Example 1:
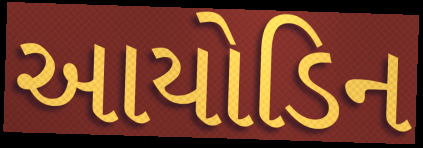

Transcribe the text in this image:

આયોડિન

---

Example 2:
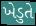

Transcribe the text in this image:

ખેડુતે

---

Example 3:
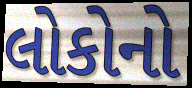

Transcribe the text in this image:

લોકોનો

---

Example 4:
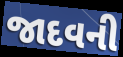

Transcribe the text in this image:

જાદવની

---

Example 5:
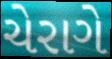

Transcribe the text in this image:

ચેરાગે